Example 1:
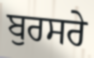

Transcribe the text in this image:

ਬੁਰਸਰੇ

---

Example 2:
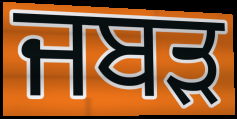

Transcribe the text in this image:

ਜਬੜ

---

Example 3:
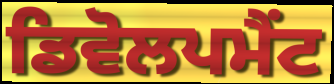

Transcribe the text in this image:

ਡਿਵੋਲਪਮੈਂਟ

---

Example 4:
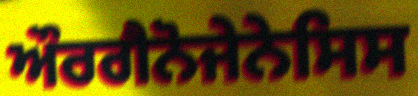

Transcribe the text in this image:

ਔਰਗੈਨੋਜੇਨੇਸਿਸ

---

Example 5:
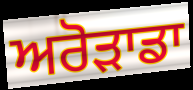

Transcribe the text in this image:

ਅਰੋੜਾਡਾ